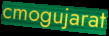
cmogujarat